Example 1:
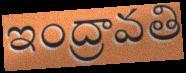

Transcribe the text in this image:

ఇంద్రావతి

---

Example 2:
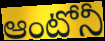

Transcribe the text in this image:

ఆంటోనీ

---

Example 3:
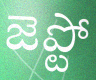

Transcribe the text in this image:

జెప్టో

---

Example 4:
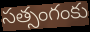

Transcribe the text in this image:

సత్సంగంకు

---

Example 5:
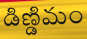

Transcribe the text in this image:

డిణ్డిమం